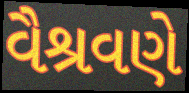
વૈશ્રવણે